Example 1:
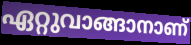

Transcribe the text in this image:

ഏറ്റുവാങ്ങാനാണ്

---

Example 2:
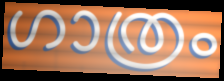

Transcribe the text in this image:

ഗാത്രം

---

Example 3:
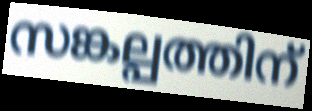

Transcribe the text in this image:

സങ്കല്പത്തിന്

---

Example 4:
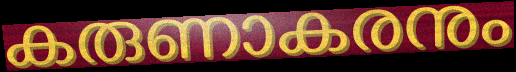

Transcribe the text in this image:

കരുണാകരനും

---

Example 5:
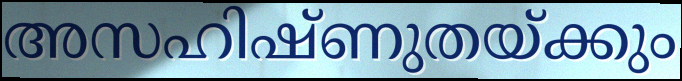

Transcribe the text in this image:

അസഹിഷ്ണുതയ്ക്കും